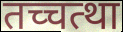
तच्चत्था